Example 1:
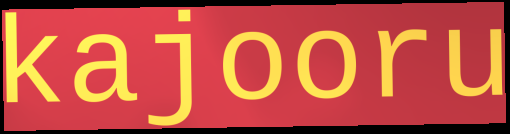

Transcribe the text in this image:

kajooru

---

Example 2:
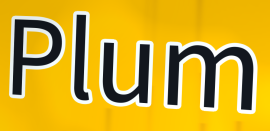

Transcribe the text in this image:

Plum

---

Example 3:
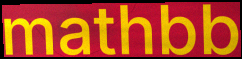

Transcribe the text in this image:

mathbb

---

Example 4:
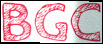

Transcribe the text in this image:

BGC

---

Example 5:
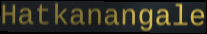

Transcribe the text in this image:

Hatkanangale